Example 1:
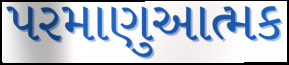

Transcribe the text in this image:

પરમાણુઆત્મક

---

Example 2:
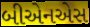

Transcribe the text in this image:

બીએનએસ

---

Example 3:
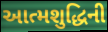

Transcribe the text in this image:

આત્મશુદ્ધિની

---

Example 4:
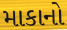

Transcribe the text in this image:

માકાનો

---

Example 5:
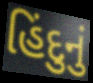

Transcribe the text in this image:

હિંદુનું